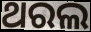
ଥରଲ